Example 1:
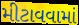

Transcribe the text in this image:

મીટાવવામાં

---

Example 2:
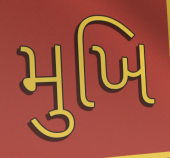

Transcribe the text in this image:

મુખિ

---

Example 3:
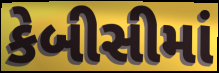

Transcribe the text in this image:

કેબીસીમાં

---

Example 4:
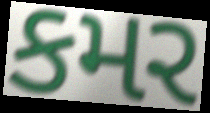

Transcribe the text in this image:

કમર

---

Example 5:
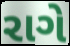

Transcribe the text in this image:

રાગે